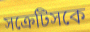
সক্রেটিসকে